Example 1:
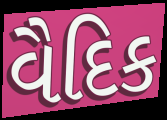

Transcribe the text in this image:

વૈદિક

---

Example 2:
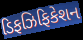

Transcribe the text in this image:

ડિફઝિફિકેશન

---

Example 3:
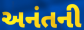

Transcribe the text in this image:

અનંતની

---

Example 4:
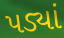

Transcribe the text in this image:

પડ્યાં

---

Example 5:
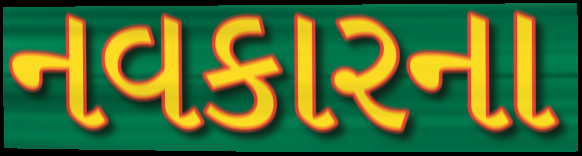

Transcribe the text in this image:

નવકારના